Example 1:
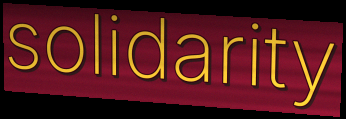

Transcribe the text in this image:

solidarity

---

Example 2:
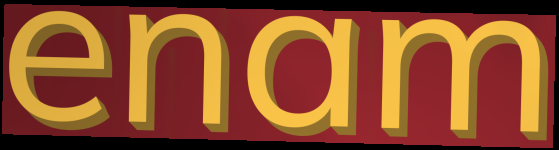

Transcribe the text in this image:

enam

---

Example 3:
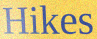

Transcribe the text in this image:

Hikes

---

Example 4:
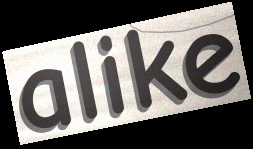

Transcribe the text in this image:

alike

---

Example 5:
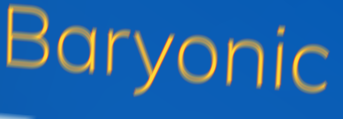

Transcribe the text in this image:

Baryonic